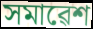
সমাৱেশ